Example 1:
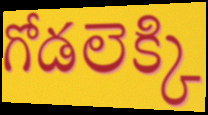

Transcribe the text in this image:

గోడలెక్కి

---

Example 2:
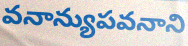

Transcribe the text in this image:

వనాన్యుపవనాని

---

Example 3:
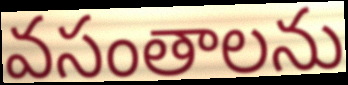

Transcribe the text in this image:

వసంతాలను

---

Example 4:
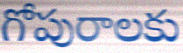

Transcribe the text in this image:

గోపురాలకు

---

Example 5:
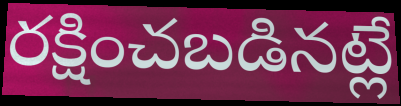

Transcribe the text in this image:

రక్షించబడినట్లే